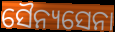
ସୈନ୍ୟସେନା